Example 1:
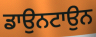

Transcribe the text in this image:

ਡਾਉਨਟਾਉਨ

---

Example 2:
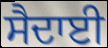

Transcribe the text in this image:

ਸੈਦਾਈ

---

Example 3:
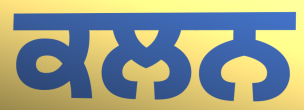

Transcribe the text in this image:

ਕਲਨ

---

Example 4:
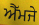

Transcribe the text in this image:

ਐੱਮਜੇ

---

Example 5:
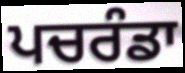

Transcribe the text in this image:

ਪਚਰੰਡਾ